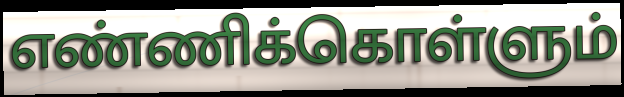
எண்ணிக்கொள்ளும்